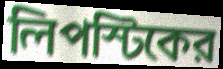
লিপস্টিকের